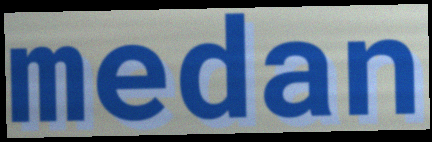
medan